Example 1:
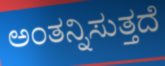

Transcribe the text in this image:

ಅಂತನ್ನಿಸುತ್ತದೆ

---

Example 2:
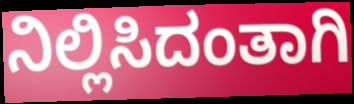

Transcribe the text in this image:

ನಿಲ್ಲಿಸಿದಂತಾಗಿ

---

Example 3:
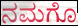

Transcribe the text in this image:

ನಮಗೊ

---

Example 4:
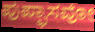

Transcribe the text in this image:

ಪುಪ್ಫಾಸವೋ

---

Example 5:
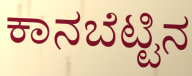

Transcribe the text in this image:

ಕಾನಬೆಟ್ಟಿನ